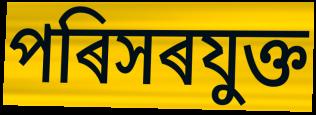
পৰিসৰযুক্ত